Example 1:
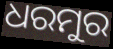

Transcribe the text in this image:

ଧରମୁର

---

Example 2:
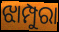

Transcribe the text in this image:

ଝାମ୍ପୁରା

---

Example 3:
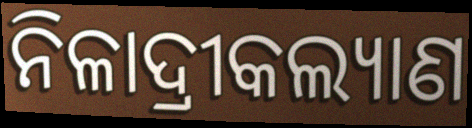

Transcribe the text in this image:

ନିଳାଦ୍ରୀକଲ୍ୟାଣ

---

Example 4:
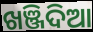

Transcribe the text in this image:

ଖଞ୍ଜିଦିଆ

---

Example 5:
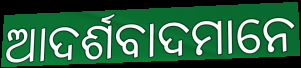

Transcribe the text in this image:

ଆଦର୍ଶବାଦମାନେ